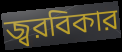
জ্বরবিকার